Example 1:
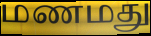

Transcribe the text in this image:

மணமது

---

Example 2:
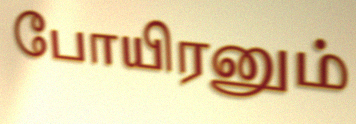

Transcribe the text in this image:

போயிரனும்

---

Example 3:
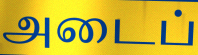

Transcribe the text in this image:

அடைப்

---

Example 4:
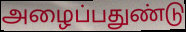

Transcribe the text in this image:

அழைப்பதுண்டு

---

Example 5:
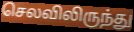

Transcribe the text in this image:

செலவிலிருந்து